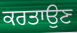
ਕਰਤਾਉਣ